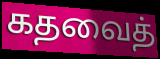
கதவைத்